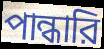
পান্ধারি